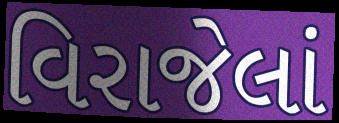
વિરાજેલાં